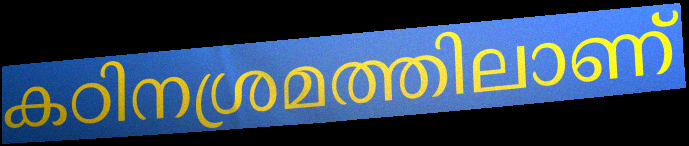
കഠിനശ്രമത്തിലാണ്